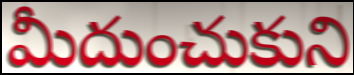
మీదుంచుకుని